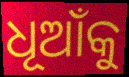
ଧୂଆଁକୁ